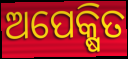
ଅପେକ୍ଷିତ